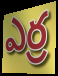
ఎర్ర